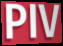
PIV